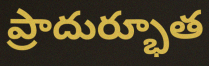
ప్రాదుర్భూత